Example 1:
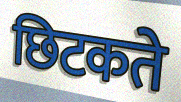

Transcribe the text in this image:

छिटकते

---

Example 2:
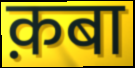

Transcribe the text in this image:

क़बा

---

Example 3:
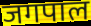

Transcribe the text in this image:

जगपाल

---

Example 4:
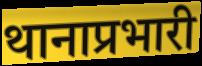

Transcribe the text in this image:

थानाप्रभारी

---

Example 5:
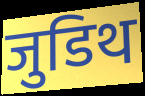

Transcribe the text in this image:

जुडिथ